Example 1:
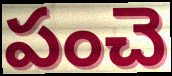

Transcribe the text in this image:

పంచె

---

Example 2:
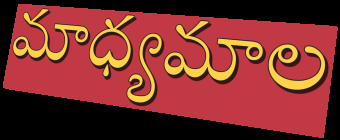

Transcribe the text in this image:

మాధ్యమాల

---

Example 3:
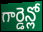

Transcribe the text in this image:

గార్డెన్లో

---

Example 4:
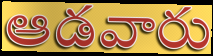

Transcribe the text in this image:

ఆడవారు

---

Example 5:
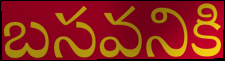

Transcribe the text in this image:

బసవనికి